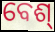
ବେଶ୍